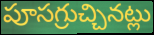
పూసగ్రుచ్చినట్లు